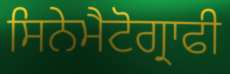
ਸਿਨੇਮੈਟੋਗ੍ਰਾਫੀ